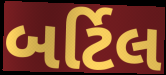
બર્ટિલ